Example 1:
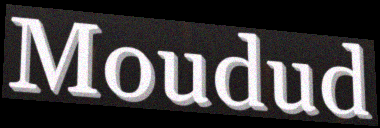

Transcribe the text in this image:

Moudud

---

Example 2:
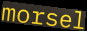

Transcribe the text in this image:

morsel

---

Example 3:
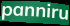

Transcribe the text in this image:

panniru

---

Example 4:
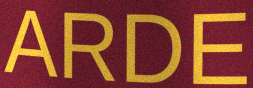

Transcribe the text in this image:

ARDE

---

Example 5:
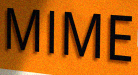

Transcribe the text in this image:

MIME